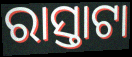
ରାସ୍ତାଟା